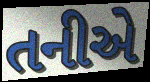
તનીએ